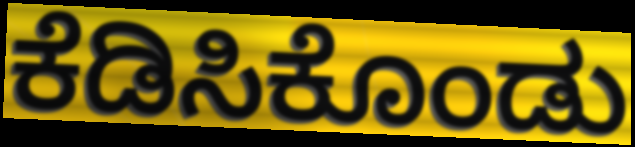
ಕೆಡಿಸಿಕೊಂಡು